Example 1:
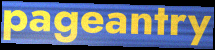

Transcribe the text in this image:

pageantry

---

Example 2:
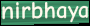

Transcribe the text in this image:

nirbhaya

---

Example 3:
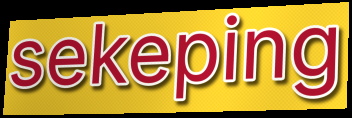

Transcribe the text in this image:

sekeping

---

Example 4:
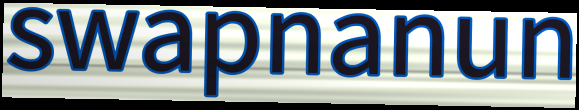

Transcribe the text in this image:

swapnanun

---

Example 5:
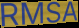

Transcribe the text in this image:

RMSA